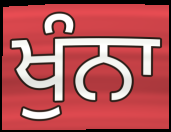
ਖੁੰਨਾ